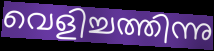
വെളിച്ചത്തിന്നു